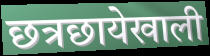
छत्रछायेखाली